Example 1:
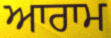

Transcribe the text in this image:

ਆਰਾਮ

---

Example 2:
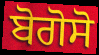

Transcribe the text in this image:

ਬੋਗੋਸੋ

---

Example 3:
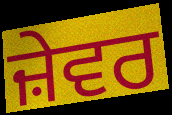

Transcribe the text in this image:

ਜ਼ੇਵਰ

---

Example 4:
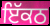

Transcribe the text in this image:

ਇੱਕਠ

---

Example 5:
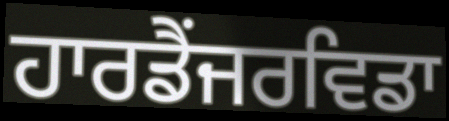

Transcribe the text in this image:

ਹਾਰਡੈਂਜਰਵਿਡਾ